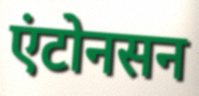
एंटोनसन